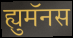
ह्युमॅनस